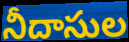
నీదాసుల